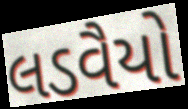
લડવૈયો